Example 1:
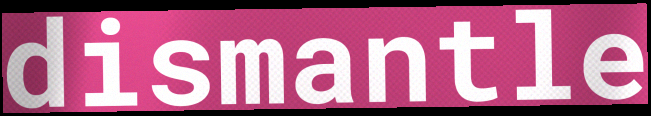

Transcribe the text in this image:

dismantle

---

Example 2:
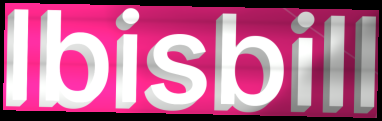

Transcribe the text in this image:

Ibisbill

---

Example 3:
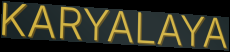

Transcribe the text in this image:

KARYALAYA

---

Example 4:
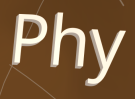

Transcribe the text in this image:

Phy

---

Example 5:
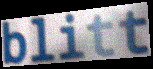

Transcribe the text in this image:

blitt